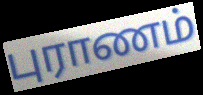
புராணம்